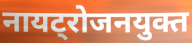
नायट्रोजनयुक्त